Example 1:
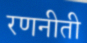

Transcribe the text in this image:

रणनीती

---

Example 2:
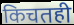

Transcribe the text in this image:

किचतही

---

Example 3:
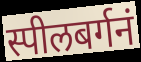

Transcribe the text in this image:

स्पीलबर्गनं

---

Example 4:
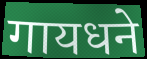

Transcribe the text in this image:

गायधने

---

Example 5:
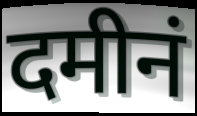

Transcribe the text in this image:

दमीनं